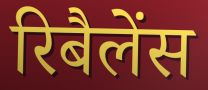
रिबैलेंस